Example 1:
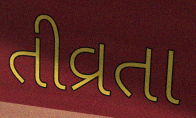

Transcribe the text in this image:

તીવ્રતા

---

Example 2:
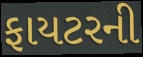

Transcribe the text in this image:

ફાયટરની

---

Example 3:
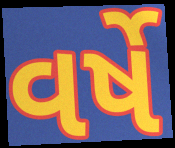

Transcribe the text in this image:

વર્ષે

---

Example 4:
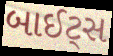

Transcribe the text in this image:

બાઈટ્સ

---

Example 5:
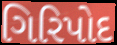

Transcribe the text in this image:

ગિરિપોદ